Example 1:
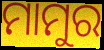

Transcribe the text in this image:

ମାମୁର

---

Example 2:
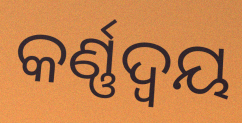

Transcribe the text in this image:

କର୍ଣ୍ଣଦ୍ୱୟ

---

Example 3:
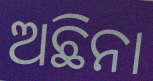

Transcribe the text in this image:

ଅଛିନା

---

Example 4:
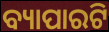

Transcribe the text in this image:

ବ୍ୟାପାରଟି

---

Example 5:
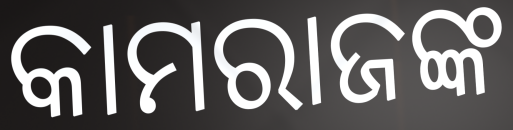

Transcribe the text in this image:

କାମରାଜଙ୍କ